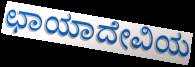
ಛಾಯಾದೇವಿಯ